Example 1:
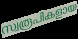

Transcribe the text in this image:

സ്വരൂപികളായ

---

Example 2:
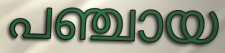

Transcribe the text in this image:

പഞ്ചായ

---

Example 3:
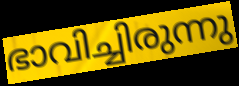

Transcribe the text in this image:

ഭാവിച്ചിരുന്നു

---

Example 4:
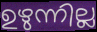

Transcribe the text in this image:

ഉഴുന്നില്ല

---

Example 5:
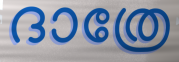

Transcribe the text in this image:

ദാത്രേ